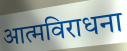
आत्मविराधना